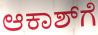
ಆಕಾಶ್‌ಗೆ